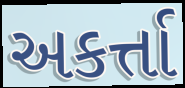
અકર્ત્તા